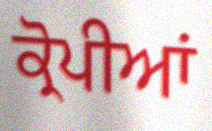
ਕ੍ਰੋਪੀਆਂ